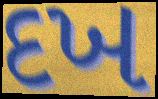
દખ